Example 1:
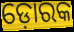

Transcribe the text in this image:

ଡ଼ୋରକ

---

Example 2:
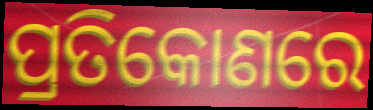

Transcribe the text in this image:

ପ୍ରତିକୋଣରେ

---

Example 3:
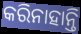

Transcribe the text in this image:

କରିନାହାନ୍ତି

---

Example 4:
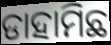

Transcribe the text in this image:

ଡାହାମିଛ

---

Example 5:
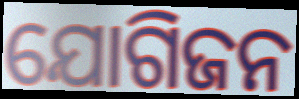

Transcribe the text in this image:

ଯୋଗିଜନ